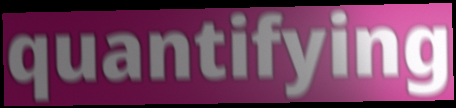
quantifying